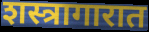
शस्त्रागारात